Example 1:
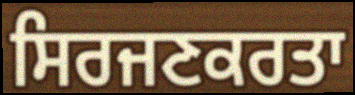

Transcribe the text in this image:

ਸਿਰਜਣਕਰਤਾ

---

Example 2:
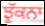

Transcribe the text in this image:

ਝੁੱਕਨਾ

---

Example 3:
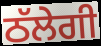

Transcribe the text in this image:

ਠੱਲੇਗੀ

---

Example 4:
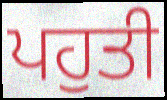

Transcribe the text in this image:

ਪਹੁਤੀ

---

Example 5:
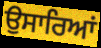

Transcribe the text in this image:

ਉਸਾਰਿਆਂ